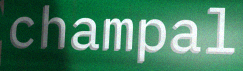
champal